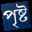
পৃষ্ট